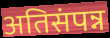
अतिसंपन्न